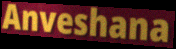
Anveshana